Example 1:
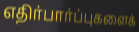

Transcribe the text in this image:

எதிர்பார்ப்புகளைக்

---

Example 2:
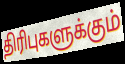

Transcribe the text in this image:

திரிபுகளுக்கும்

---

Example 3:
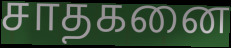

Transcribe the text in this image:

சாதகனை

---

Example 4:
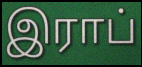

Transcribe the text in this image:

இராப்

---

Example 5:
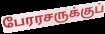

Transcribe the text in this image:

பேரரசருக்குப்